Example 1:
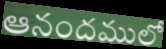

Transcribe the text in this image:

ఆనందములో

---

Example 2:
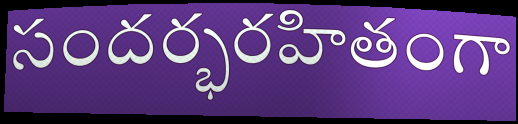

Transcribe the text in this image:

సందర్భరహితంగా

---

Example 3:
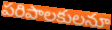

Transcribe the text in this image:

పరిపాలకులనూ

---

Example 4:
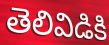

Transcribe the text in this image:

తెలివిడికి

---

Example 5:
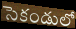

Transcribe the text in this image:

సెకండులో